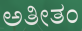
ಅತೀತಂ